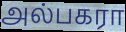
அல்பகரா